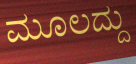
ಮೂಲದ್ದು